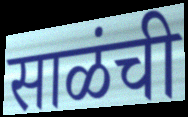
साळंची